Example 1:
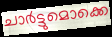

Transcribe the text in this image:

ചാർട്ടുമൊക്കെ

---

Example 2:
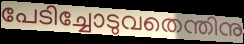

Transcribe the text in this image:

പേടിച്ചോടുവതെന്തിനു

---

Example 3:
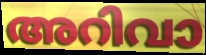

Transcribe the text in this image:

അറിവാ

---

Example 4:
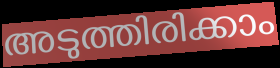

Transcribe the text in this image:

അടുത്തിരിക്കാം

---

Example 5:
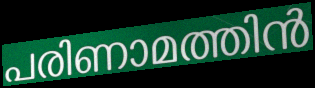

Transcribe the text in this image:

പരിണാമത്തിൻ